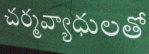
చర్మవ్యాధులతో